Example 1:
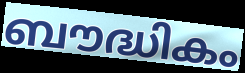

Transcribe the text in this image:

ബൗദ്ധികം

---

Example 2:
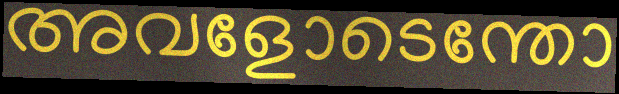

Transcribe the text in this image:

അവളോടെന്തോ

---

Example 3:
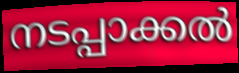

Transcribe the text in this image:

നടപ്പാക്കൽ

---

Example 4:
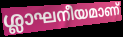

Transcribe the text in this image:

ശ്ലാഘനീയമാണ്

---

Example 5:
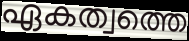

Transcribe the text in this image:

ഏകത്വത്തെ